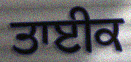
ਤਾਈਕ